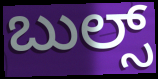
ಬುಲ್ಸ್